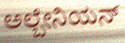
ಅಲ್ಬೇನಿಯನ್